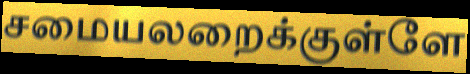
சமையலறைக்குள்ளே